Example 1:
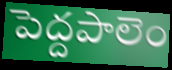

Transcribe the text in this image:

పెద్దపాలెం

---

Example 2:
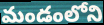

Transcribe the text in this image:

మండంలోని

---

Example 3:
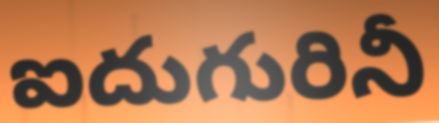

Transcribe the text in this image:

ఐదుగురినీ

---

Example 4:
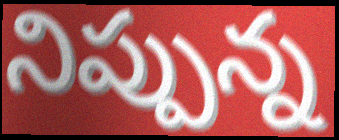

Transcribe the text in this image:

నిప్పున్న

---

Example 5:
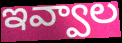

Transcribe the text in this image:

ఇవ్వాల